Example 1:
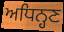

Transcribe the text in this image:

ਅਧਿਨ੍ਹਣ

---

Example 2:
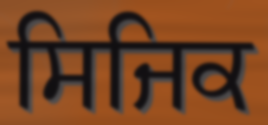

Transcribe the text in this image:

ਸਿਜਿਕ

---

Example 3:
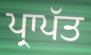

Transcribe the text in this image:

ਪ੍ਰਾਪੱਤ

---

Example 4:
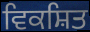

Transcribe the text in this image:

ਵਿਕਸ਼ਿਤ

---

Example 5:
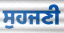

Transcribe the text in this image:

ਸੁਹਜਣੀ